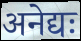
अनेद्यः